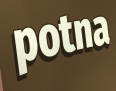
potna